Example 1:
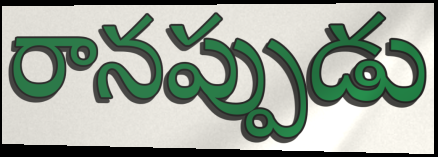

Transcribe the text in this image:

రానప్పుడు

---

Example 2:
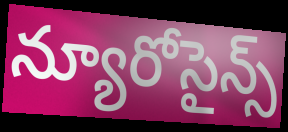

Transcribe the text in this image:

న్యూరోసైన్స్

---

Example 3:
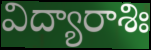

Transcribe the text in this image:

విద్యారాశిః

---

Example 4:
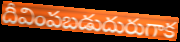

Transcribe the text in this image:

దీవింపబడుదురుగాక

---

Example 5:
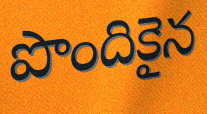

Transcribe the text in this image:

పొందికైన